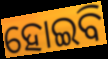
ହୋଇବି